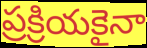
ప్రక్రియకైనా